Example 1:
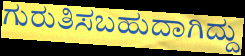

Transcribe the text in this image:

ಗುರುತಿಸಬಹುದಾಗಿದ್ದು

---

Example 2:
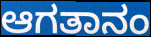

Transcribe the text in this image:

ಆಗತಾನಂ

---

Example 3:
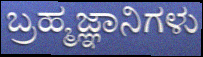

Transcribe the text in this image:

ಬ್ರಹ್ಮಜ್ಞಾನಿಗಳು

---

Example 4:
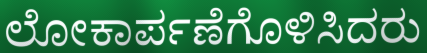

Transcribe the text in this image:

ಲೋಕಾರ್ಪಣೆಗೊಳಿಸಿದರು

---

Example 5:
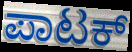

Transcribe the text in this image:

ಪಾಟಕ್